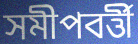
সমীপবর্ত্তী